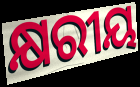
କ୍ଷରୀୟ